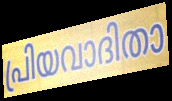
പ്രിയവാദിതാ